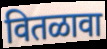
वितळावा